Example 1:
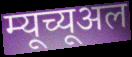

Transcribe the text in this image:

म्यूच्यूअल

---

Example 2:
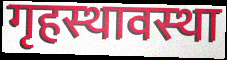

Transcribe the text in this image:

गृहस्थावस्था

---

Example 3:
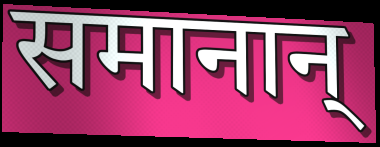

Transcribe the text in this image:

समानान्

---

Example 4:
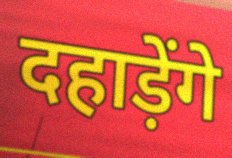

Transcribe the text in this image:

दहाड़ेंगे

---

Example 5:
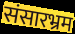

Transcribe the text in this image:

संसारभ्रम